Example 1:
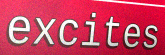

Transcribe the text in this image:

excites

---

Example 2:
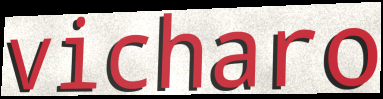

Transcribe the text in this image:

vicharo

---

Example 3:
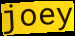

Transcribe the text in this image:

joey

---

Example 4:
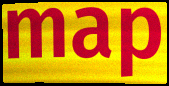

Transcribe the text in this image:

map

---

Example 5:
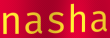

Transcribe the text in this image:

nasha